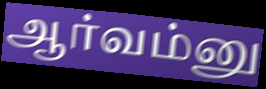
ஆர்வம்னு